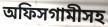
অফিসগামীসহ